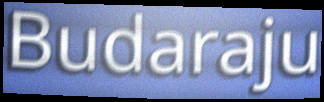
Budaraju